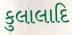
કુલાલાદિ